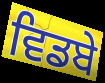
ਵਿਡਬੇ